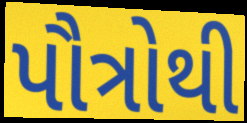
પૌત્રોથી